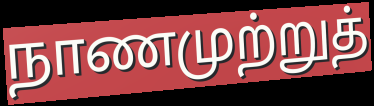
நாணமுற்றுத்